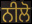
ਨੀਲੋ